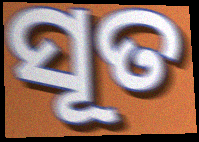
ସୂତ